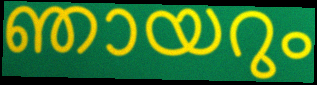
ഞായറും